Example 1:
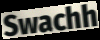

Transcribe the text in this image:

Swachh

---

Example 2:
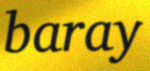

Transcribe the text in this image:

baray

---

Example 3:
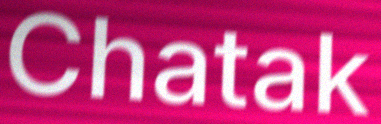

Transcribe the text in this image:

Chatak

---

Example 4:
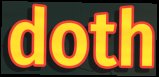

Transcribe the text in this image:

doth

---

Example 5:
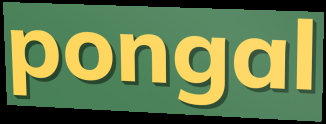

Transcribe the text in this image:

pongal